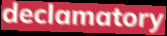
declamatory